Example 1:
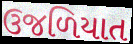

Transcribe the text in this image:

ઉજળિયાત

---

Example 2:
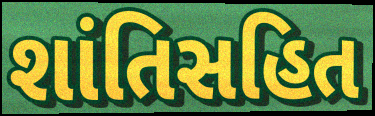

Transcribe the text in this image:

શાંતિસહિત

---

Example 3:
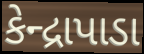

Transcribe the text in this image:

કેન્દ્રાપાડા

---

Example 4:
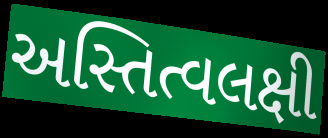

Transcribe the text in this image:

અસ્તિત્વલક્ષી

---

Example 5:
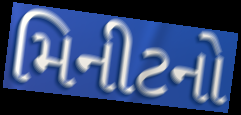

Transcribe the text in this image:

મિનીટનો